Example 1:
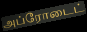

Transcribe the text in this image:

அப்ரோடைட்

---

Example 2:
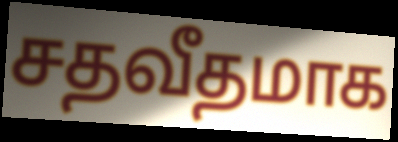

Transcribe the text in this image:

சதவீதமாக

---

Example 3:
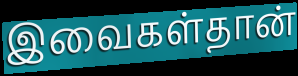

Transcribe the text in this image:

இவைகள்தான்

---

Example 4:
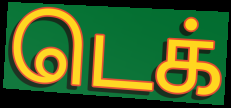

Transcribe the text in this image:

டெக்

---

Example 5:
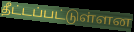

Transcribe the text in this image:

தீட்டப்பட்டுள்ளன